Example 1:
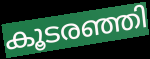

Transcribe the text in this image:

കൂടരഞ്ഞി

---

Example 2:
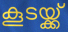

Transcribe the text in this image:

കൂടയ്ക്ക്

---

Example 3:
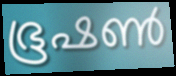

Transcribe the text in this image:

ഭൂഷൺ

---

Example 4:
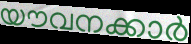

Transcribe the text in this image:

യൗവനക്കാർ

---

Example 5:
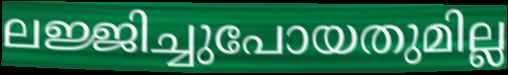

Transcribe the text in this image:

ലജ്ജിച്ചുപോയതുമില്ല